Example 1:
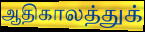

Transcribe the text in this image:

ஆதிகாலத்துக்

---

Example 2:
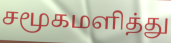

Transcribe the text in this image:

சமூகமளித்து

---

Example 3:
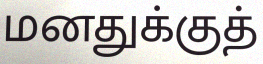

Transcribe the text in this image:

மனதுக்குத்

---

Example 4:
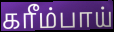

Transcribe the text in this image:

கரீம்பாய்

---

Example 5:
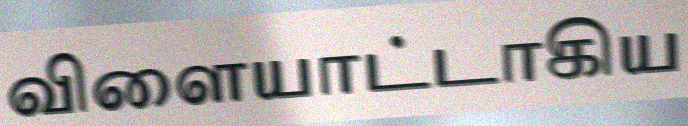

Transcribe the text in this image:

விளையாட்டாகிய